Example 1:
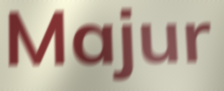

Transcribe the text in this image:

Majur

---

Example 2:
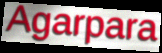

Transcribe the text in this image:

Agarpara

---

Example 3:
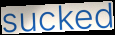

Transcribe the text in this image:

sucked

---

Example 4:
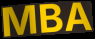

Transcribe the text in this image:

MBA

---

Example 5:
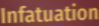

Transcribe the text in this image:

Infatuation